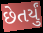
છેતર્યું